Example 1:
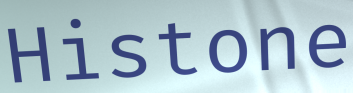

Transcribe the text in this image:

Histone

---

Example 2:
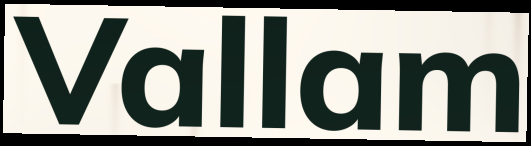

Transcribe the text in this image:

Vallam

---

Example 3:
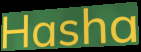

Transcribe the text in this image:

Hasha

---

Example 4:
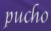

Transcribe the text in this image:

pucho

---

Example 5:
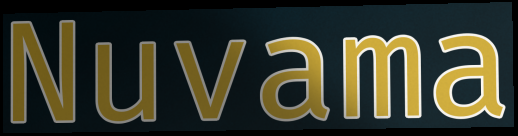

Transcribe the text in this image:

Nuvama